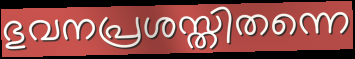
ഭുവനപ്രശസ്തിതന്നെ